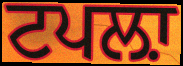
ਟਪਲ਼ਾ